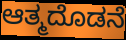
ಆತ್ಮದೊಡನೆ